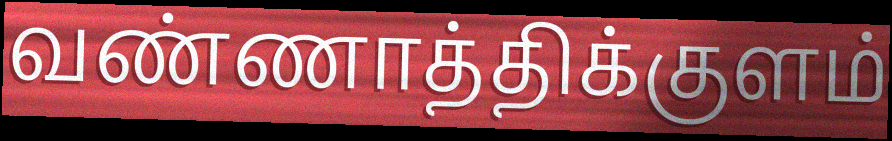
வண்ணாத்திக்குளம்